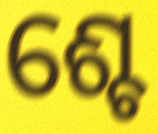
ଶ୍ଚେ